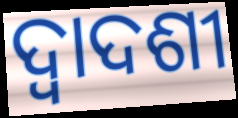
ଦ୍ବାଦଶୀ